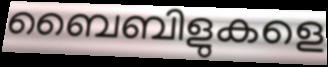
ബൈബിളുകളെ